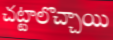
చట్టాలొచ్చాయి